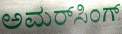
ಅಮರ್‌ಸಿಂಗ್